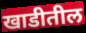
खाडीतील